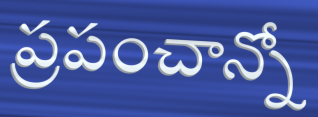
ప్రపంచాన్నో